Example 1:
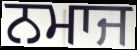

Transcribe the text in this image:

ਨਮਾਜ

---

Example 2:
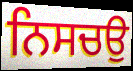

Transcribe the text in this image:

ਨਿਸਚਉ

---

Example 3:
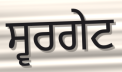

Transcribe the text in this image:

ਸ੍ਵਰਗੇਟ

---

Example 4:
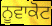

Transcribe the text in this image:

ਨੂਵਾਕੋਟ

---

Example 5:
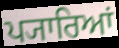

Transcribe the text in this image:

ਪ੍ਯਾਰਿਆਂ